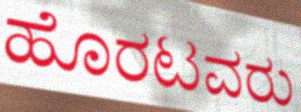
ಹೊರಟವರು